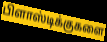
பிளாஸ்டிக்குகளை